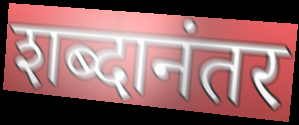
शब्दानंतर